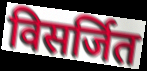
विसर्जित